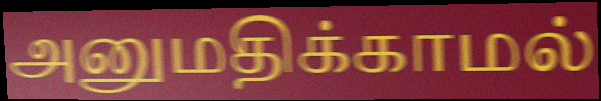
அனுமதிக்காமல்